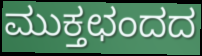
ಮುಕ್ತಛಂದದ